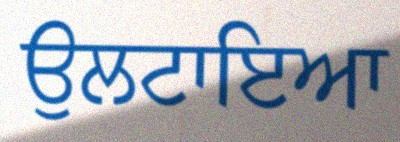
ਉਲਟਾਇਆ